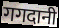
गगदानी